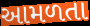
આમળતા